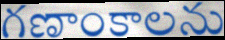
గణాంకాలను